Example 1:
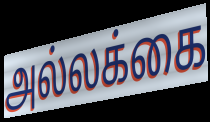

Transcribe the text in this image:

அல்லக்கை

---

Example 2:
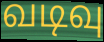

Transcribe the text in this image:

வடிவு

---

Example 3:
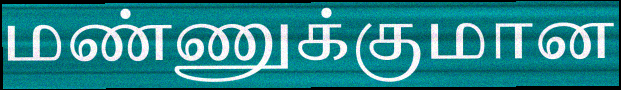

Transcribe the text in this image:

மண்ணுக்குமான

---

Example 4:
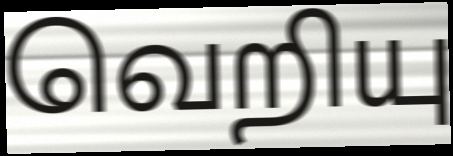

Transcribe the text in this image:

வெறியு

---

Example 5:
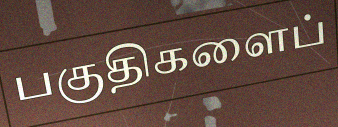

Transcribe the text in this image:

பகுதிகளைப்